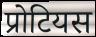
प्रोटियस